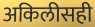
अकिलीसही